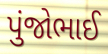
પુંજોભાઈ